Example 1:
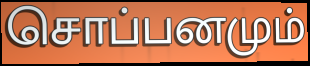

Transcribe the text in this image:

சொப்பனமும்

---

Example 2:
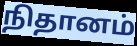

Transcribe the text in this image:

நிதானம்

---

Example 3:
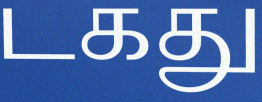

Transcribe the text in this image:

டகது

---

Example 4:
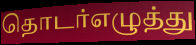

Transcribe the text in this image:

தொடர்எழுத்து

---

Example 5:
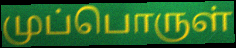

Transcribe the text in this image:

முப்பொருள்